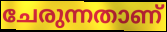
ചേരുന്നതാണ്